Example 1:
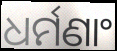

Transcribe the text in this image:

ଧର୍ମଣାଂ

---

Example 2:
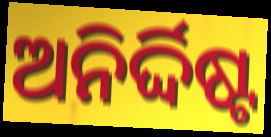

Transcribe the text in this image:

ଅନିର୍ଦ୍ଦିଷ୍ଟ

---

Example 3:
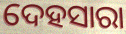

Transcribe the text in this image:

ଦେହସାରା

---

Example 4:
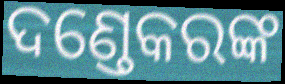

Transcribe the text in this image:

ଦଣ୍ଡେକରଙ୍କ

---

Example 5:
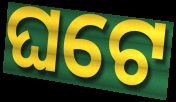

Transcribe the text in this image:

ଘଟେ